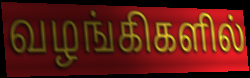
வழங்கிகளில்